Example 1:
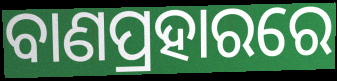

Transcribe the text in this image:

ବାଣପ୍ରହାରରେ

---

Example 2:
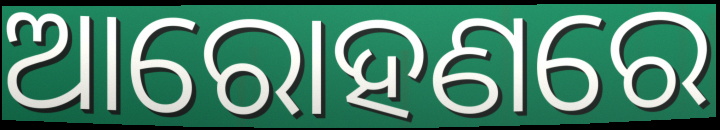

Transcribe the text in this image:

ଆରୋହଣରେ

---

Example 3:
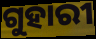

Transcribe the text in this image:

ଗୁହାରୀ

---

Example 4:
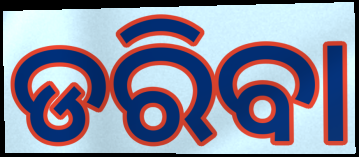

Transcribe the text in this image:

ଡରିବା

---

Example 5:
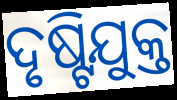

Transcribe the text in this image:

ଦୃଷ୍ଟିଯୁକ୍ତ